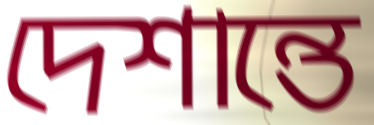
দেশান্তে